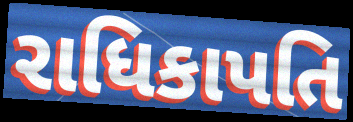
રાધિકાપતિ